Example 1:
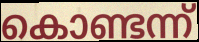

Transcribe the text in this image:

കൊണ്ടന്ന്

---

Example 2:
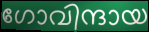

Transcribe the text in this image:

ഗോവിന്ദായ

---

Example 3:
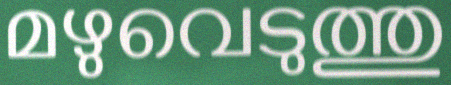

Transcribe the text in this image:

മഴുവെടുത്തു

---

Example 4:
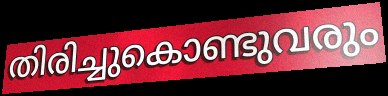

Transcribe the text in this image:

തിരിച്ചുകൊണ്ടുവരും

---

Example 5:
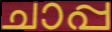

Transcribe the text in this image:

ചാപ്പ